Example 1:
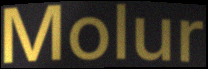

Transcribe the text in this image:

Molur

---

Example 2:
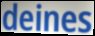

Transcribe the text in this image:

deines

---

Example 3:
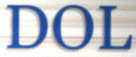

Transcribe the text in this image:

DOL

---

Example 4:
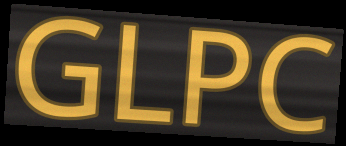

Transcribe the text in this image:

GLPC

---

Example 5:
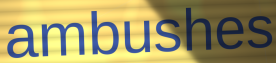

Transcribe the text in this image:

ambushes